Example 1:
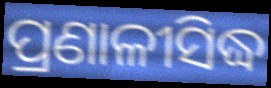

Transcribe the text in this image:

ପ୍ରଣାଳୀସିଦ୍ଧ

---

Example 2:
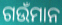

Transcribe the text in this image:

ଗଉଁମାନ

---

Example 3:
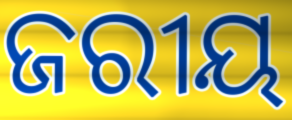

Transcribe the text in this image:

ଜରୀୟ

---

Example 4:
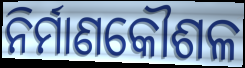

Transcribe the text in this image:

ନିର୍ମାଣକୌଶଳ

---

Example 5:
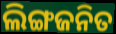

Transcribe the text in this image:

ଲିଙ୍ଗଜନିତ